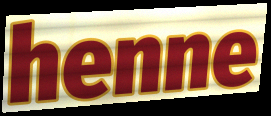
henne